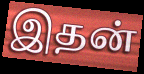
இதன்